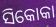
ସିକୋକା